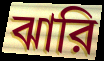
ঝারি